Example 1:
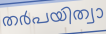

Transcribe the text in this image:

തർപയിത്വാ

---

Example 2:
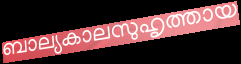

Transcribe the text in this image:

ബാല്യകാലസുഹൃത്തായ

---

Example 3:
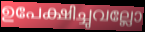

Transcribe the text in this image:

ഉപേക്ഷിച്ചുവല്ലോ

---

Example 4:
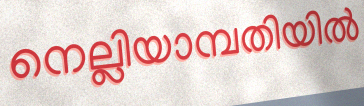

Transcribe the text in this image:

നെല്ലിയാമ്പതിയിൽ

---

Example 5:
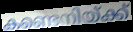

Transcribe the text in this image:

കണ്ടെനിയ്ക്ക്